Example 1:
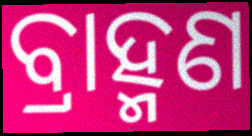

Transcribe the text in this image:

ବ୍ରାହ୍ମଣ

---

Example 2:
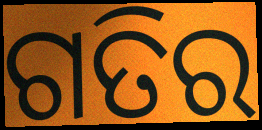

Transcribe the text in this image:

ଗତିର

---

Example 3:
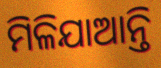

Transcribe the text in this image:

ମିଳିଯାଆନ୍ତି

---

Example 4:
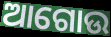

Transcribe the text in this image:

ଆଗୋଉ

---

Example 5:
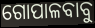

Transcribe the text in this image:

ଗୋପାଳବାବୁ